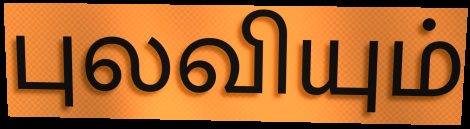
புலவியும்